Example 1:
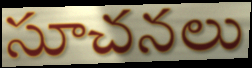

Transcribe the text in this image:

సూచనలు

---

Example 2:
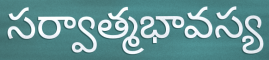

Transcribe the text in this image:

సర్వాత్మభావస్య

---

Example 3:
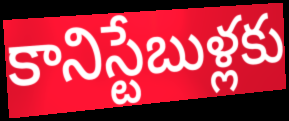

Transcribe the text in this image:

కానిస్టేబుళ్లకు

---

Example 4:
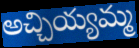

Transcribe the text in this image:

అచ్చియ్యమ్మ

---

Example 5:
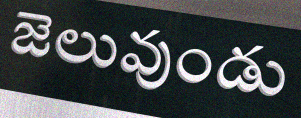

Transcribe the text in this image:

జెలువుండు